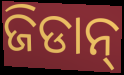
ଜିଡାନ୍